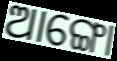
ଆଙ୍ଗୋ